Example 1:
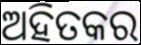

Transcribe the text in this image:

ଅହିତକର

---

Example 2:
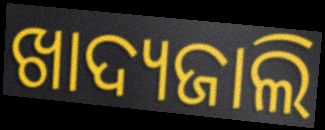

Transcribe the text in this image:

ଖାଦ୍ୟଜାଲି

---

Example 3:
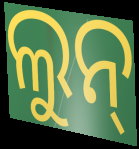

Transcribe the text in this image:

ଲୁନ୍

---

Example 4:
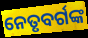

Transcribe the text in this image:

ନେତୃବର୍ଗଙ୍କ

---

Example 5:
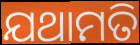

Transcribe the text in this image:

ଯଥାମତି